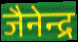
जैनेन्द्र